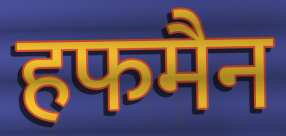
हफमैन